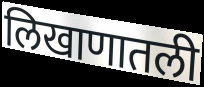
लिखाणातली